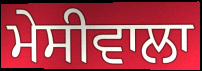
ਮੇਸੀਵਾਲਾ